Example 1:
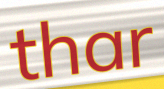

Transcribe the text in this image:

thar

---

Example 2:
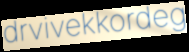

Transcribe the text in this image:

drvivekkordeg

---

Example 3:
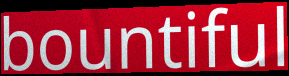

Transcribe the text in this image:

bountiful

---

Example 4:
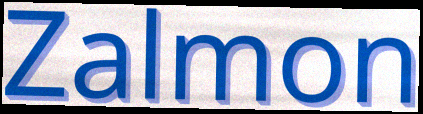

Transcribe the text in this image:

Zalmon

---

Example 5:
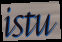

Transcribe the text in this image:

istu